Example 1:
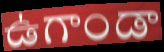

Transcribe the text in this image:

ఉగాండా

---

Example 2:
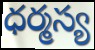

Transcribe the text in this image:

ధర్మస్య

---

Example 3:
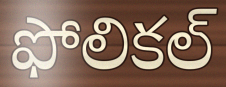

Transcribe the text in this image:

ఫోలికల్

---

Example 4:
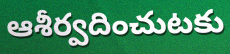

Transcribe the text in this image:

ఆశీర్వదించుటకు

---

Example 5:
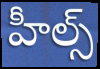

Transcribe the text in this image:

హీల్స్